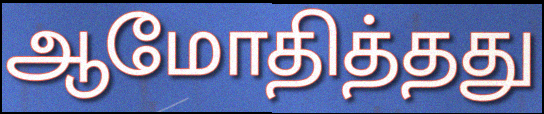
ஆமோதித்தது